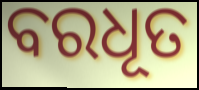
ବରଧୂତ